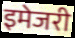
इमेजरी